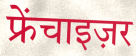
फ्रेंचाइज़र